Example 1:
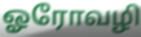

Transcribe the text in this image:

ஓரோவழி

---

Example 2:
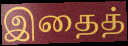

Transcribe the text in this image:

இதைத்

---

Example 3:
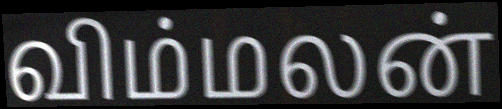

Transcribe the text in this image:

விம்மலன்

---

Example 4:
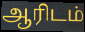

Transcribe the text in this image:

ஆரிடம்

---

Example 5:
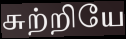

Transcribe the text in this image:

சுற்றியே